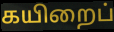
கயிறைப்